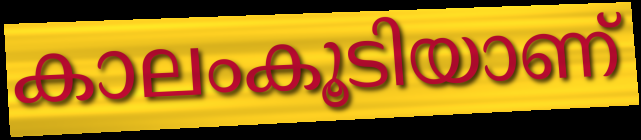
കാലംകൂടിയാണ്